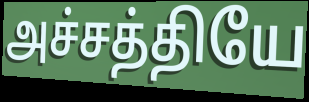
அச்சத்தியே